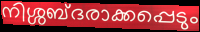
നിശ്ശബ്ദരാക്കപ്പെടും